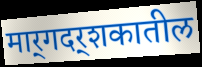
मार्गदर्शकातील